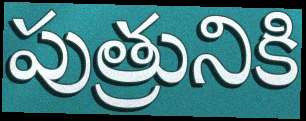
పుత్రునికి